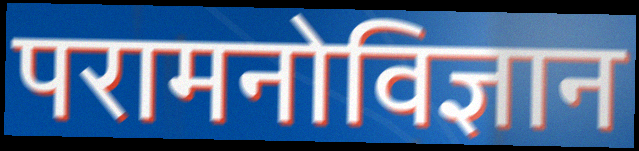
परामनोविज्ञान